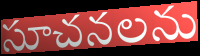
సూచనలను